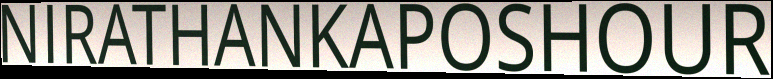
NIRATHANKAPOSHOUR